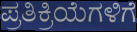
ಪ್ರತಿಕ್ರಿಯೆಗಳಿಗೆ